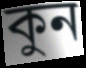
কুন